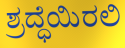
ಶ್ರದ್ಧೆಯಿರಲಿ